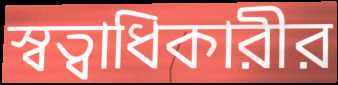
স্বত্বাধিকারীর